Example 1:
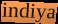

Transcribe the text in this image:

indiya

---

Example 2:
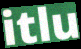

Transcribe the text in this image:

itlu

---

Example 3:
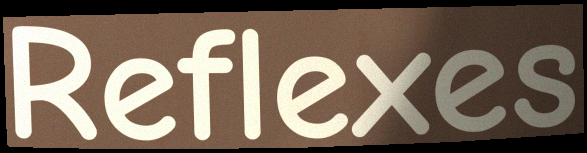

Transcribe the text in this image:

Reflexes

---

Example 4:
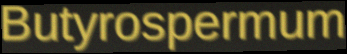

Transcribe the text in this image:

Butyrospermum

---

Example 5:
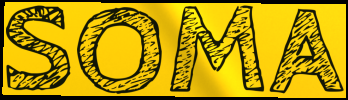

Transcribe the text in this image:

SOMA